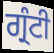
ਗ੍ਰੰਟੀ